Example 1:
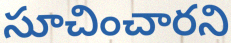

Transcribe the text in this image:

సూచించారని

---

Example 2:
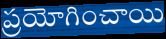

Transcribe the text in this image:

ప్రయోగించాయి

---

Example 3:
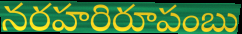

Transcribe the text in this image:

నరహరిరూపంబు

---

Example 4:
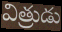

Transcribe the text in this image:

విత్రుడు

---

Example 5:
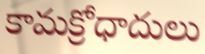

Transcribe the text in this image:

కామక్రోధాదులు